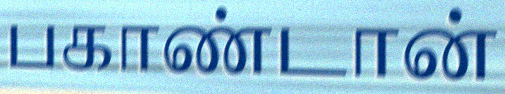
பகாண்டான்